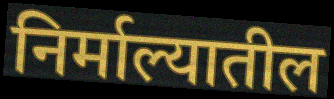
निर्माल्यातील